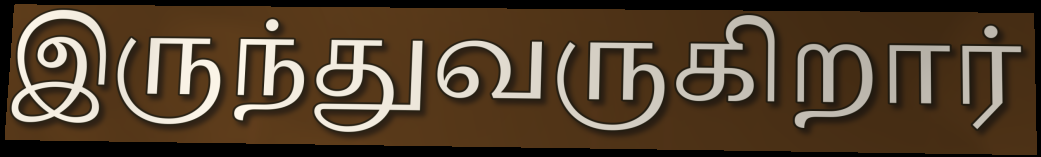
இருந்துவருகிறார்